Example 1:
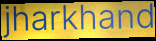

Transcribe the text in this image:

jharkhand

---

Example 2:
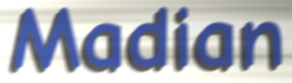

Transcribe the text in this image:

Madian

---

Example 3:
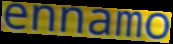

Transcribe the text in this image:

ennamo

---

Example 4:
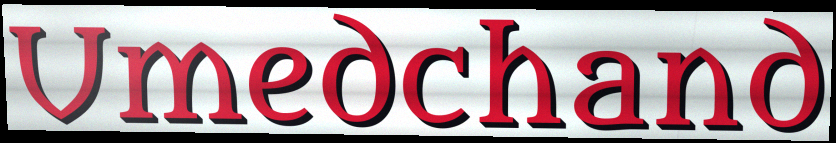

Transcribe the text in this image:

Umedchand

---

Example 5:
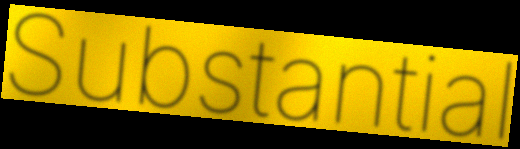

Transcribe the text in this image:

Substantial